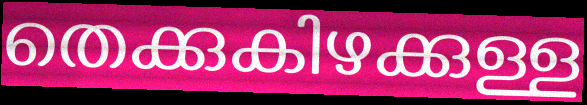
തെക്കുകിഴക്കുള്ള